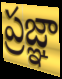
ప్రజ్ఞా